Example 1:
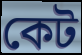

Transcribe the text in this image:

কেট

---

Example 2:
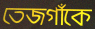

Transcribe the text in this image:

তেজগাঁকে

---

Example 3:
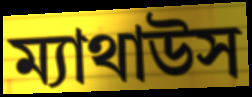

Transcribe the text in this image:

ম্যাথাউস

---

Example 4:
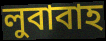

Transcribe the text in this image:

লুবাবাহ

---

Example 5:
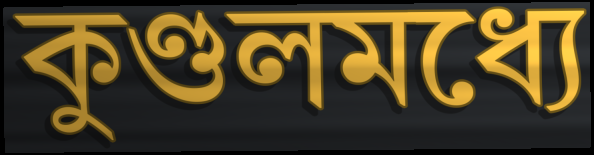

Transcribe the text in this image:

কুণ্ডলমধ্যে